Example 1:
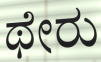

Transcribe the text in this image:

ಥೇರು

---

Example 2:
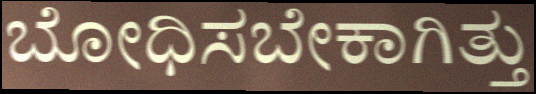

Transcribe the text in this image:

ಬೋಧಿಸಬೇಕಾಗಿತ್ತು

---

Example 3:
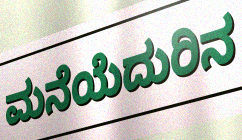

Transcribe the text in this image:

ಮನೆಯೆದುರಿನ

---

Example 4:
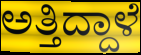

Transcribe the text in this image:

ಅತ್ತಿದ್ದಾಳೆ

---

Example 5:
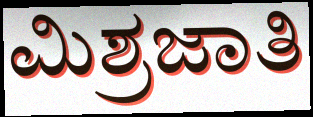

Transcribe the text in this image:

ಮಿಶ್ರಜಾತಿ